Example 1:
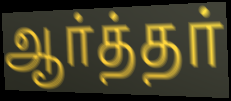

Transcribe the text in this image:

ஆர்த்தர்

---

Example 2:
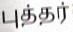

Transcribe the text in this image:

புத்தர்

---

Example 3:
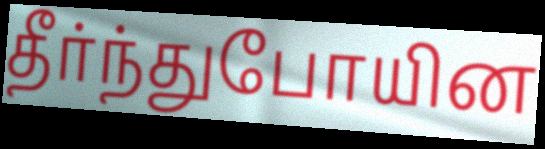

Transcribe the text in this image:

தீர்ந்துபோயின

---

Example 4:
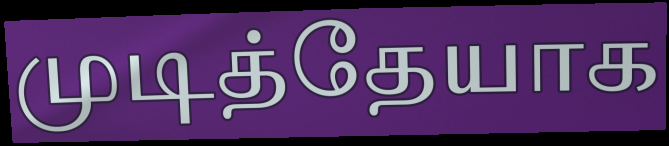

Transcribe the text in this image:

முடித்தேயாக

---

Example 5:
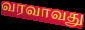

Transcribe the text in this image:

வரவாவது